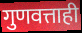
गुणवत्ताही